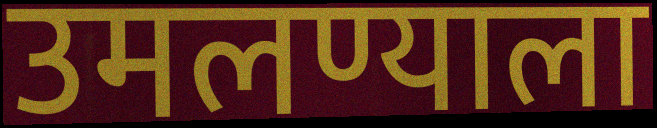
उमलण्याला